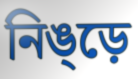
নিঙ্ড়ে